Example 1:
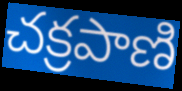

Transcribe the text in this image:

చక్రపాణి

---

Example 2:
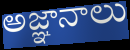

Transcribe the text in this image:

అజ్ఞానాలు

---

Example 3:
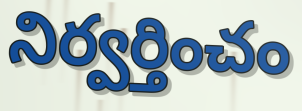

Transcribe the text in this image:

నిర్వర్తించం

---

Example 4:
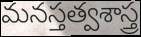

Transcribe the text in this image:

మనస్తత్వశాస్త్ర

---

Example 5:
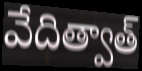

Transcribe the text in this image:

వేదిత్వాత్